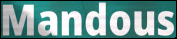
Mandous